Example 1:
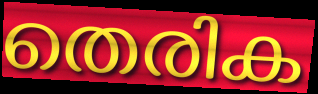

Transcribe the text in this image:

തെരിക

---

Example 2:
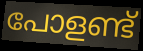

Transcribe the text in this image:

പോളണ്ട്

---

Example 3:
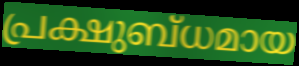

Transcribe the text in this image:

പ്രക്ഷുബ്ധമായ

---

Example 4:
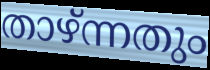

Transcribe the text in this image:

താഴ്ന്നതും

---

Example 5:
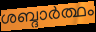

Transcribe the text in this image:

ശബ്ദാർത്ഥം